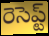
రెసెప్ట్